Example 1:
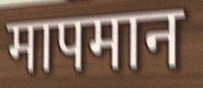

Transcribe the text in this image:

मापमान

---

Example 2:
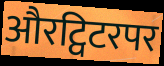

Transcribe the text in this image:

औरट्विटरपर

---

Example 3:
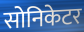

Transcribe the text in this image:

सोनिकेटर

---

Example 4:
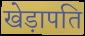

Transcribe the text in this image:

खेड़ापति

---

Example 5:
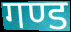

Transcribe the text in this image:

गण्ड